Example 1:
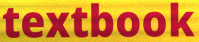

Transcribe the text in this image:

textbook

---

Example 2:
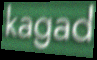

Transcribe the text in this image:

kagad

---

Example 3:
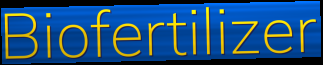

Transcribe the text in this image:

Biofertilizer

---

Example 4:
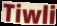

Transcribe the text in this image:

Tiwli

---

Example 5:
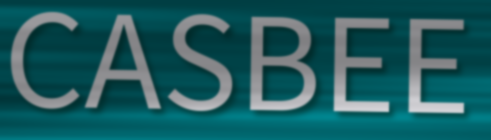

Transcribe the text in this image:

CASBEE